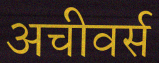
अचीवर्स